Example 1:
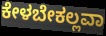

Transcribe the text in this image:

ಕೇಳಬೇಕಲ್ಲವಾ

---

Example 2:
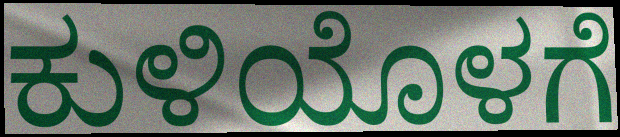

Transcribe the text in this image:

ಕುಳಿಯೊಳಗೆ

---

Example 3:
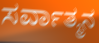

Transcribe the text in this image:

ಸರ್ವಾತ್ಮನ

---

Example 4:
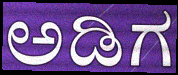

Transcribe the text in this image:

ಅಡಿಗ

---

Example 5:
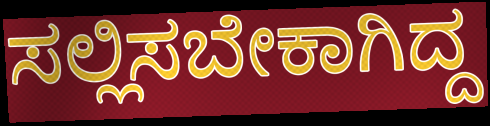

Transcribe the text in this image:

ಸಲ್ಲಿಸಬೇಕಾಗಿದ್ದ